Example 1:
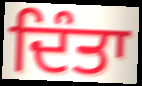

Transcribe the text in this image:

ਦਿੰਤਾ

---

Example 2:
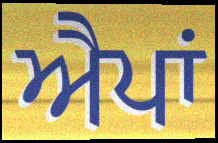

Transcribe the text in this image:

ਐਪਾਂ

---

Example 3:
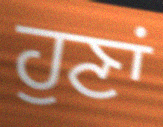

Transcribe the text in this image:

ਹੁਣਾਂ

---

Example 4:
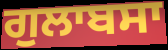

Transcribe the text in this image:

ਗੁਲਾਬਸਾ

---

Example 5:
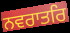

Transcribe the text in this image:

ਨਵਰਾਤਰਿ